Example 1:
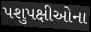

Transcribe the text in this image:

પશુપક્ષીઓના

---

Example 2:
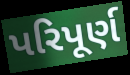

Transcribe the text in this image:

પરિપૂર્ણ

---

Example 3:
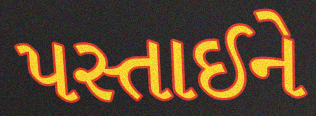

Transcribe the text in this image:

પસ્તાઈને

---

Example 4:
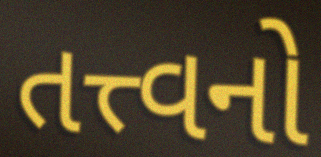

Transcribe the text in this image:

તત્ત્વનો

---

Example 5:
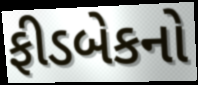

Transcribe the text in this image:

ફીડબેકનો